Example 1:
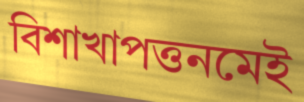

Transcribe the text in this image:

বিশাখাপত্তনমেই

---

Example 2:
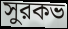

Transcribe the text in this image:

সুরকভ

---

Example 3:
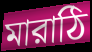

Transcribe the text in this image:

মারাঠি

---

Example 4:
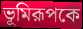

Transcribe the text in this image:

ভূমিরূপকে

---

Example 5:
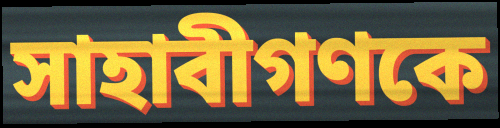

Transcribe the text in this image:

সাহাবীগণকে